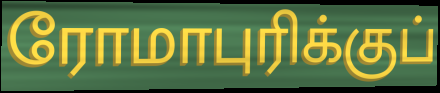
ரோமாபுரிக்குப்